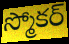
స్మోకర్